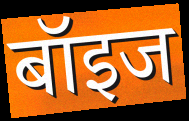
बॉइज